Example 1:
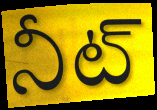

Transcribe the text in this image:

నీట్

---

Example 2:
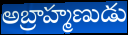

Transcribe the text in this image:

అబ్రాహ్మణుడు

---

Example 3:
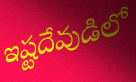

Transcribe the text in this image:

ఇష్టదేవుడిలో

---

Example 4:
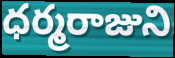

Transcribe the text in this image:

ధర్మరాజుని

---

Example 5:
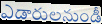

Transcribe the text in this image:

ఎడారులనుండీ